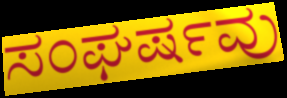
ಸಂಘರ್ಷವು